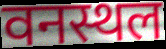
वनस्थल